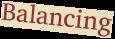
Balancing